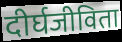
दीर्घजीविता